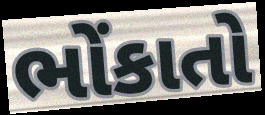
ભોંકાતો